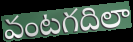
వంటగదిలా